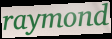
raymond